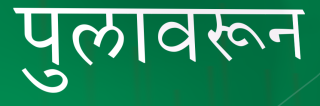
पुलावरून